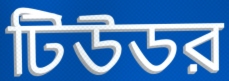
টিউডর